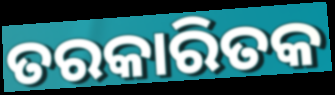
ତରକାରିତକ